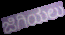
ಜಿಗಿಯಲು